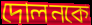
দোলনকে